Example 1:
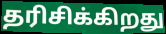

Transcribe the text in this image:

தரிசிக்கிறது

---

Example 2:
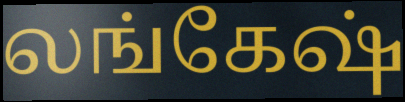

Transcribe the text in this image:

லங்கேஷ்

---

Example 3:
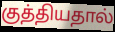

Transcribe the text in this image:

குத்தியதால்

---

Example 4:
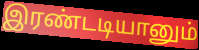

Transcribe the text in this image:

இரண்டடியானும்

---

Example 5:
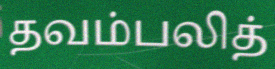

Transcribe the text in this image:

தவம்பலித்